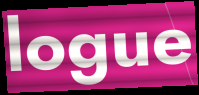
logue